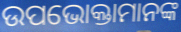
ଉପଭୋକ୍ତାମାନଙ୍କ